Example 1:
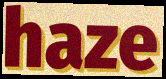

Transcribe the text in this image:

haze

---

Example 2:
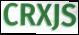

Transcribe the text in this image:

CRXJS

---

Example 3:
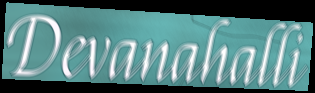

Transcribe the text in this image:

Devanahalli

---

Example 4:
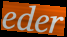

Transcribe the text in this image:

eder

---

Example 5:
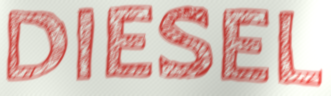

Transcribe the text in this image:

DIESEL